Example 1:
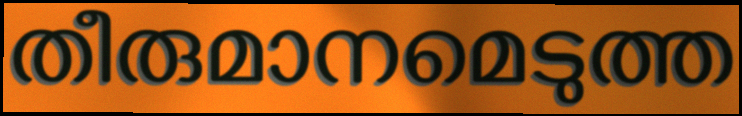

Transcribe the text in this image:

തീരുമാനമെടുത്ത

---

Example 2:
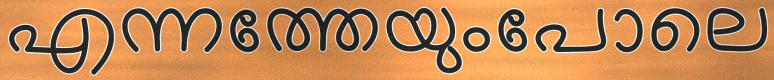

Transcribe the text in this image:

എന്നത്തേയുംപോലെ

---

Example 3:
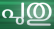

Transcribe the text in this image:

പുതു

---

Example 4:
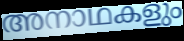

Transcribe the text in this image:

അനാഥകളും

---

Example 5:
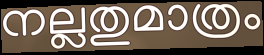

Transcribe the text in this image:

നല്ലതുമാത്രം